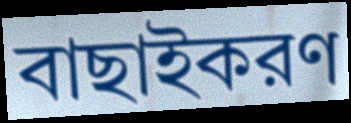
বাছাইকরণ